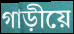
গাড়ীয়ে